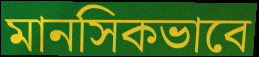
মানসিকভাবে